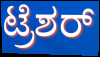
ಟ್ರೆಶರ್